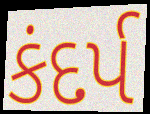
કંદર્પ